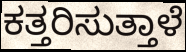
ಕತ್ತರಿಸುತ್ತಾಳೆ